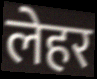
लेहर